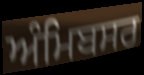
ਅੰਮਿਬਸਰ